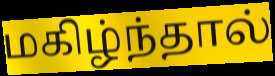
மகிழ்ந்தால்